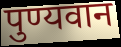
पुण्यवान